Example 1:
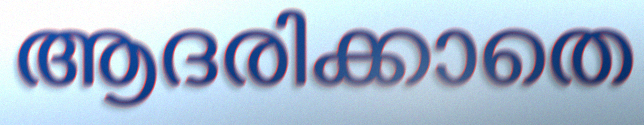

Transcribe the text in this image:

ആദരിക്കാതെ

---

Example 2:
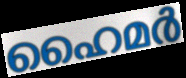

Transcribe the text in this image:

ഹൈമർ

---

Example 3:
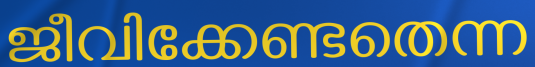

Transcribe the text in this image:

ജീവിക്കേണ്ടതെന്ന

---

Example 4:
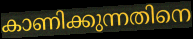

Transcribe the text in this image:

കാണിക്കുന്നതിനെ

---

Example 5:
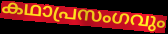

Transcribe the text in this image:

കഥാപ്രസംഗവും